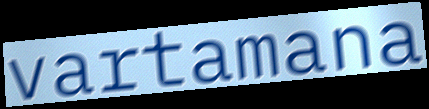
vartamana